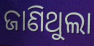
ଜାଣିଥୁଲା